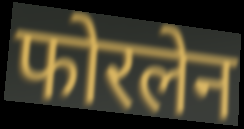
फोरलेन